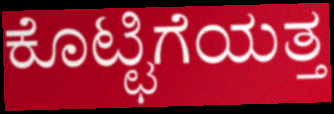
ಕೊಟ್ಟಿಗೆಯತ್ತ